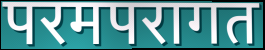
परमपरागत